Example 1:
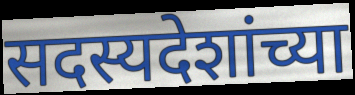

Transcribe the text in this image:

सदस्यदेशांच्या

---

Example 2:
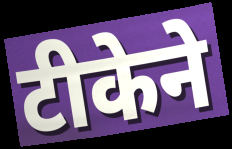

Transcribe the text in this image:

टीकेने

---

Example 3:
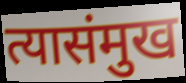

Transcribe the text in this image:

त्यासंमुख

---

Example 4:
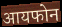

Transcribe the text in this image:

आयफोन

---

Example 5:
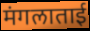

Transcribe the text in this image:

मंगलाताई